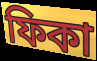
ফিকা